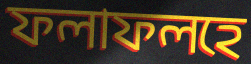
ফলাফলহে